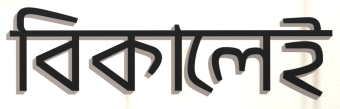
বিকালেই